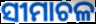
ସୀମାଚଳ